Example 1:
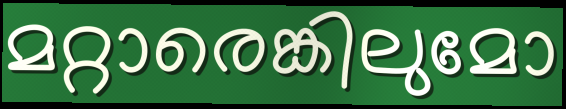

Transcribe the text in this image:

മറ്റാരെങ്കിലുമോ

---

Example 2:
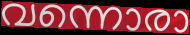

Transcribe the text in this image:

വന്നൊരാ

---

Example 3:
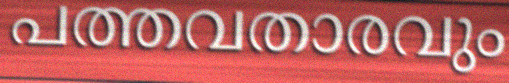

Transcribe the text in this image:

പത്തവതാരവും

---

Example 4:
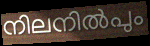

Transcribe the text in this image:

നിലനിൽപും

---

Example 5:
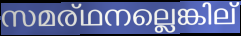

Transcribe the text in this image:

സമര്ഥനല്ലെങ്കില്